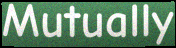
Mutually